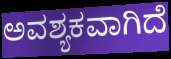
ಅವಶ್ಯಕವಾಗಿದೆ